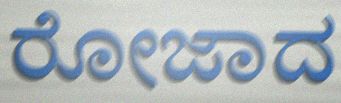
ರೋಜಾದ